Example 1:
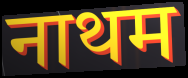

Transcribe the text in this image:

नाथम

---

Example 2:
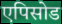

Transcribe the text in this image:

एपिसोड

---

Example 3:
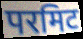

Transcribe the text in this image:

परमिट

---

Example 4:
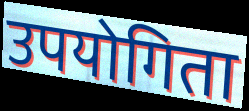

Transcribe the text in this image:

उपयोगिता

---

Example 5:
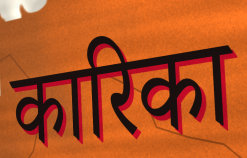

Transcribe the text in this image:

कारिका